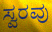
ಸ್ವರವು